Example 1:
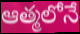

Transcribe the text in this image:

ఆత్మలోనే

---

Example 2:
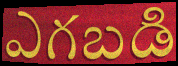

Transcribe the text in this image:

ఎగబడి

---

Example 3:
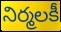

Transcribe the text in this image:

నిర్మలకీ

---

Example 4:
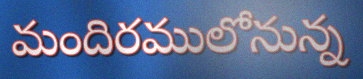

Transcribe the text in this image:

మందిరములోనున్న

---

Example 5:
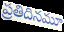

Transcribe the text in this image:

ప్రతిదినమూ